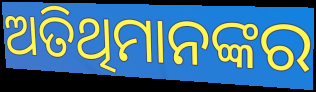
ଅତିଥିମାନଙ୍କର